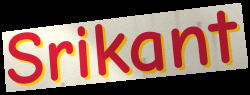
Srikant